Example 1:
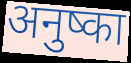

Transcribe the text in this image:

अनुष्का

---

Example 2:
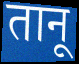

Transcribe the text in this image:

तानू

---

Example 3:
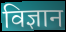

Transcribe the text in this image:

विज्ञान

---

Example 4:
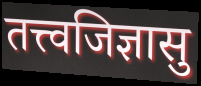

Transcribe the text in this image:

तत्त्वजिज्ञासु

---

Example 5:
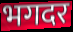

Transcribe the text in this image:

भगदर